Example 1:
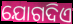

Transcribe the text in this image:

ଯୋଗଦିଏ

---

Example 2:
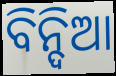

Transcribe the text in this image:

ବିନ୍ଦିଆ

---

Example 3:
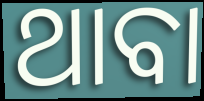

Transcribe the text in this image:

ଥାବା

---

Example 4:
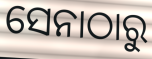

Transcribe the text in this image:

ସେନାଠାରୁ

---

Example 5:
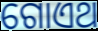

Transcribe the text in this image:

ଗୋଏଥ